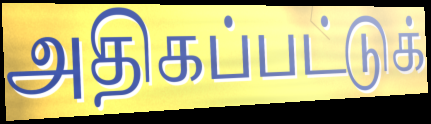
அதிகப்பட்டுக்